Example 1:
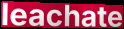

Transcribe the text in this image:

leachate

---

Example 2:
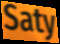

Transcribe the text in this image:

Saty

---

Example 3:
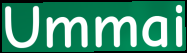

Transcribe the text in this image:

Ummai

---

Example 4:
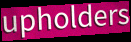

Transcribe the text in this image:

upholders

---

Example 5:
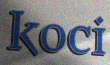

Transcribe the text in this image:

koci